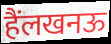
हैंलखनऊ